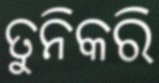
ତୁନିକରି